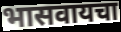
भासवायचा